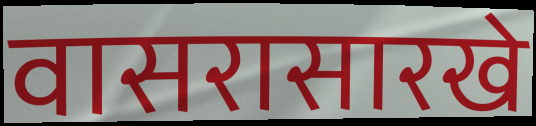
वासरासारखे